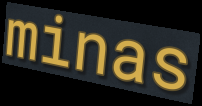
minas